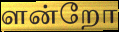
ளன்றோ